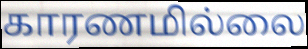
காரணமில்லை